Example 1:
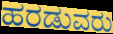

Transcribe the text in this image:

ಹರಡುವರು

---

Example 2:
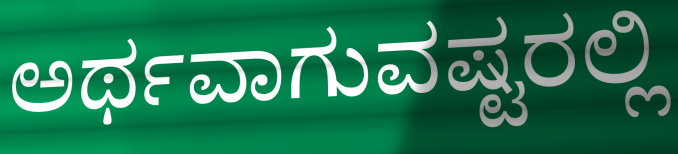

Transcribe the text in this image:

ಅರ್ಥವಾಗುವಷ್ಟರಲ್ಲಿ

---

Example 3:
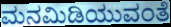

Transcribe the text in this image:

ಮನಮಿಡಿಯುವಂತೆ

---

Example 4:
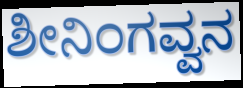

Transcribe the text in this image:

ಶೀನಿಂಗವ್ವನ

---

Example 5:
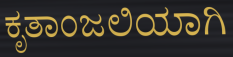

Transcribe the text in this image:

ಕೃತಾಂಜಲಿಯಾಗಿ